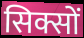
सिक्सों